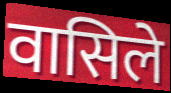
वासिले